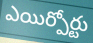
ఎయిర్పోర్టు